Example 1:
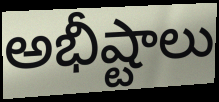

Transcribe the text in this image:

అభీష్టాలు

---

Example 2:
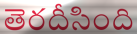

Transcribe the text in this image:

తెరదీసింది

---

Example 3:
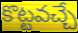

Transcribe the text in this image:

కొట్టవచ్చే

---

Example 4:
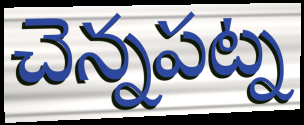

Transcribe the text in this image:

చెన్నపట్న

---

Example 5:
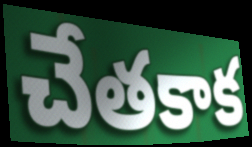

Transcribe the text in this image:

చేతకాక